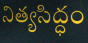
నిత్యసిద్ధం